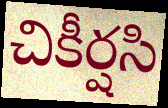
చికీర్షసి